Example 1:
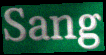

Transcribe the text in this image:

Sang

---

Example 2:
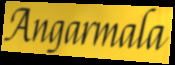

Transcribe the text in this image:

Angarmala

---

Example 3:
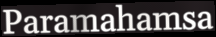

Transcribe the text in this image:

Paramahamsa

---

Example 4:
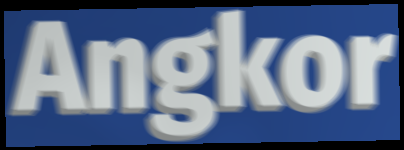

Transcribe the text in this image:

Angkor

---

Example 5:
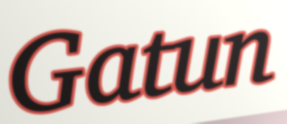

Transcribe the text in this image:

Gatun